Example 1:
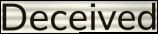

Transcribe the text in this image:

Deceived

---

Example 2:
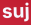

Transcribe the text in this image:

suj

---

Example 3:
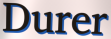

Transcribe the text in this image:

Durer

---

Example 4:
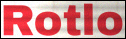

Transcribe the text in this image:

Rotlo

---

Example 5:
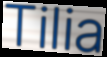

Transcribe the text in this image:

Tilia